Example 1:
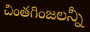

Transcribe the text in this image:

చింతగింజలన్నీ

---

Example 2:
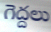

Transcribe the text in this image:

గెద్దలు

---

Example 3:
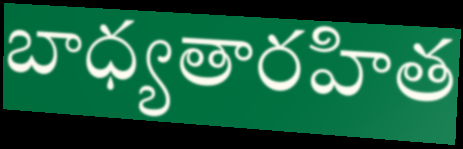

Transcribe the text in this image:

బాధ్యతారహిత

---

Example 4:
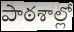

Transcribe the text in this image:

పాఠశాల్లో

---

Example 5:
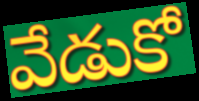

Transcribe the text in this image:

వేడుకో